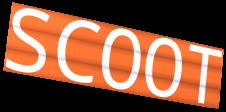
SCOOT